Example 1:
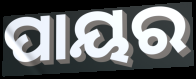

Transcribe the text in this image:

ପାୟର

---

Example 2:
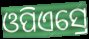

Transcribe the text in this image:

ଓପିଏସ୍ରେ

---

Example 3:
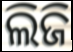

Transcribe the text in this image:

ଲିଜି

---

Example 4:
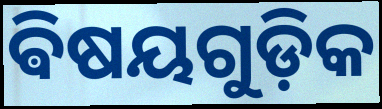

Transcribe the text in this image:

ଵିଷୟଗୁଡ଼ିକ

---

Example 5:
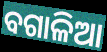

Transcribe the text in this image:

ବଗାଳିଆ